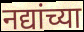
नद्यांच्या